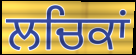
ਲਚਿਕਾਂ